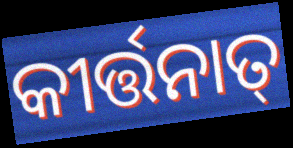
କୀର୍ତ୍ତନାତ୍